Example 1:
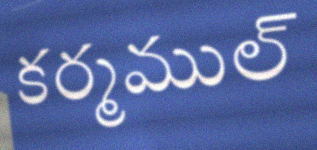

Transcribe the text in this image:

కర్మముల్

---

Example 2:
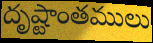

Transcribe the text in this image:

దృష్టాంతములు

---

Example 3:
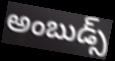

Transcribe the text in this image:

అంబుడ్స్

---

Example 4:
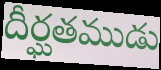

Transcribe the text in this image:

దీర్ఘతముడు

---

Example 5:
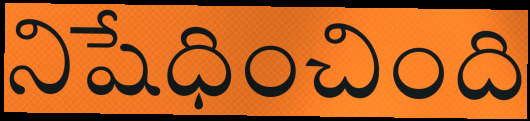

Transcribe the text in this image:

నిషేధించింది